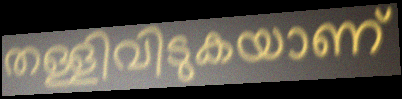
തള്ളിവിടുകയാണ്